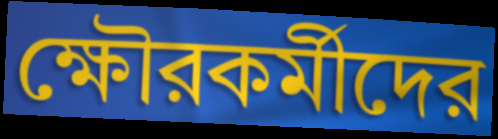
ক্ষৌরকর্মীদের